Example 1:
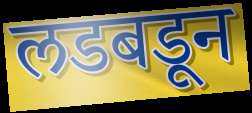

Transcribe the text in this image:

लडबडून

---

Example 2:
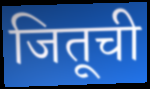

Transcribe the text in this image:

जितूची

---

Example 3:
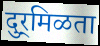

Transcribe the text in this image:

दुर्मिळता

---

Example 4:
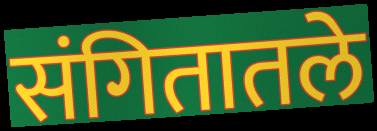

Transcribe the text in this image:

संगितातले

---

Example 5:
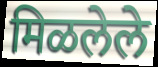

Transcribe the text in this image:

मिळलेले